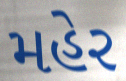
મહેર